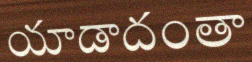
యాడాదంతా